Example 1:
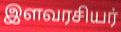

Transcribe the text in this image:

இளவரசியர்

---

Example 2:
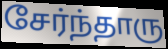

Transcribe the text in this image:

சேர்ந்தாரு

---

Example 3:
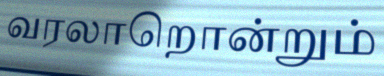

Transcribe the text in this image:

வரலாறொன்றும்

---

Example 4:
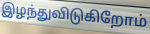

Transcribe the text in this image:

இழந்துவிடுகிறோம்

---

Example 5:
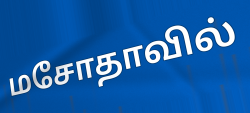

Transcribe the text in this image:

மசோதாவில்